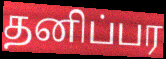
தனிப்பர